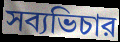
সব্যভিচার